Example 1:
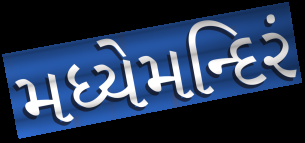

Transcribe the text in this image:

મધ્યેમન્દિરં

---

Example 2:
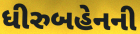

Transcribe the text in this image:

ધીરુબહેનની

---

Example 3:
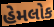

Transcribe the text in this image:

હેમલોક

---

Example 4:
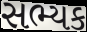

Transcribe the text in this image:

સભ્યક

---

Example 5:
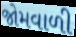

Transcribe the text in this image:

જોમવાળી